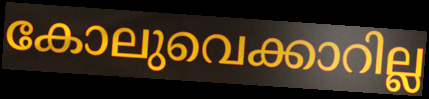
കോലുവെക്കാറില്ല